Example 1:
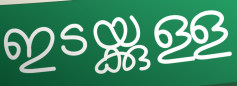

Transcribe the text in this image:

ഇടയ്ക്കുള്ള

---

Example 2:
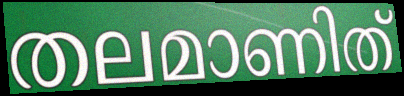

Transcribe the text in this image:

തലമാണിത്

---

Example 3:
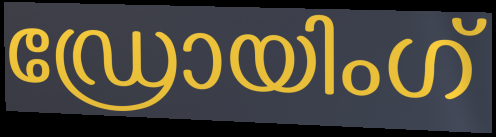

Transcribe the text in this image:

ഡ്രോയിംഗ്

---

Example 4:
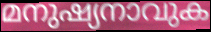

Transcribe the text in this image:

മനുഷ്യനാവുക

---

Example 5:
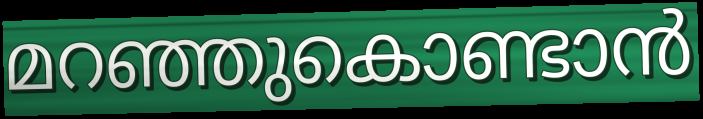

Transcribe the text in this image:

മറഞ്ഞുകൊണ്ടാൻ